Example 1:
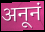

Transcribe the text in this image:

अनूनं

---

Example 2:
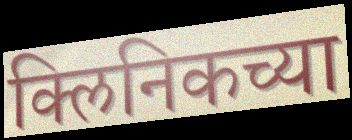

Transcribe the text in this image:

क्लिनिकच्या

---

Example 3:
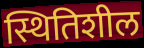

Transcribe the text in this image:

स्थितिशील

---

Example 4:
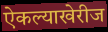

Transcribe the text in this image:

ऐकल्याखेरीज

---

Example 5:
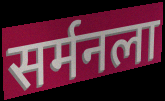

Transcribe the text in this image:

सर्मनला